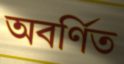
অবর্ণিত